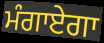
ਮੰਗਾਏਗਾ